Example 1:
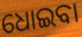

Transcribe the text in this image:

ଧୋଇବା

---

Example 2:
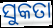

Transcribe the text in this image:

ସୁକତା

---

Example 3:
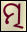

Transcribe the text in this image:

ତ୍ମ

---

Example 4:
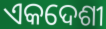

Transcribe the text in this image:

ଏକଦେଶୀ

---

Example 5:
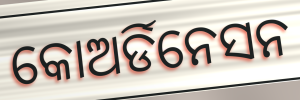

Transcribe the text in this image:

କୋଅର୍ଡିନେସନ